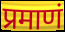
प्रमाणं